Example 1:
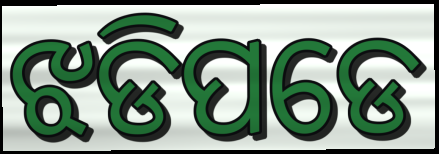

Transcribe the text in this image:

ଝଡିପଡେ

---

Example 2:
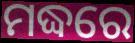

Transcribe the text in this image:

ମଦ୍ଧରେ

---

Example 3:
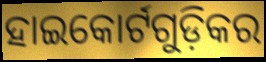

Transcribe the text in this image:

ହାଇକୋର୍ଟଗୁଡ଼ିକର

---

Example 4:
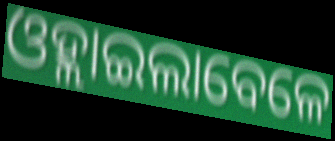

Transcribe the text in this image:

ଓହ୍ଲାଇଲାବେଳେ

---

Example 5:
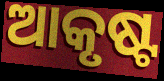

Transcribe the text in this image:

ଆକୃଷ୍ଟ